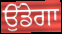
ਉੱਡੇਗਾ